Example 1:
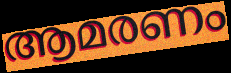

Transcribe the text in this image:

ആമരണം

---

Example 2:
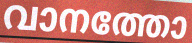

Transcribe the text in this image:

വാനത്തോ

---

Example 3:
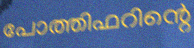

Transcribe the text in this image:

പോത്തിഫറിന്റെ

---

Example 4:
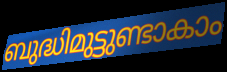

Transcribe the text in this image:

ബുദ്ധിമുട്ടുണ്ടാകാം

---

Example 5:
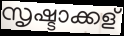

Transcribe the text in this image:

സൃഷ്ടാക്കള്